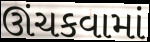
ઊંચકવામાં